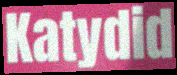
Katydid